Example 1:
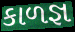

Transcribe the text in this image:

કાળજ્ઞ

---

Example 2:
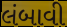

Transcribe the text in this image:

લંબાવી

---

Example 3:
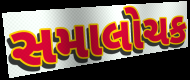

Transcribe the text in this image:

સમાલોચક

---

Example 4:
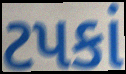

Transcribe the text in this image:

ટપકાં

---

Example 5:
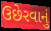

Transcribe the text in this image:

ઉછેરવાનું